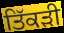
ਤਿੱਕੜੀ